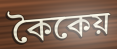
কৈকেয়